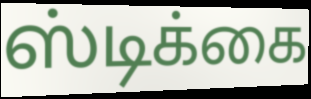
ஸ்டிக்கை